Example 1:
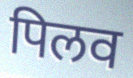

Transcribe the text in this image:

पिलव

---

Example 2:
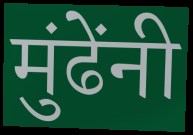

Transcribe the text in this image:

मुंढेंनी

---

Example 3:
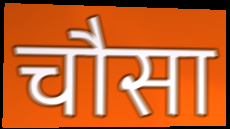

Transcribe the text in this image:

चौसा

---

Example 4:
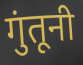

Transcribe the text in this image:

गुंतूनी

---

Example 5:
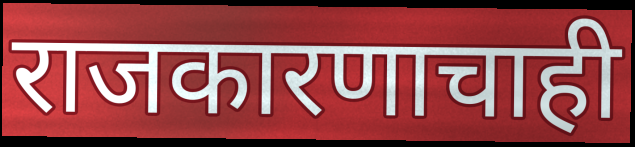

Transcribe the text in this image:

राजकारणाचाही